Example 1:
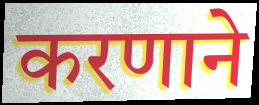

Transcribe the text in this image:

करणाने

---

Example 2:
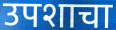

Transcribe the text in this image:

उपशाचा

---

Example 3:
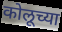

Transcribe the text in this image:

कोलूच्या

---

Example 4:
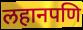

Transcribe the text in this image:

लहानपणि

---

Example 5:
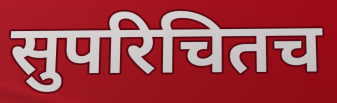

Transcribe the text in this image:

सुपरिचितच